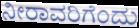
ನೀರಾವರಿಗೆಂದು